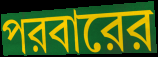
পরবারের